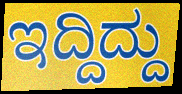
ಇದ್ದಿದ್ದು